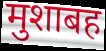
मुशाबह